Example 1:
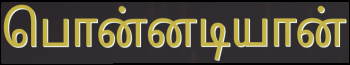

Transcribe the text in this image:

பொன்னடியான்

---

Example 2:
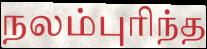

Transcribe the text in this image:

நலம்புரிந்த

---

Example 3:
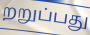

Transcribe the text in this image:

றறுப்பது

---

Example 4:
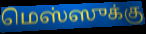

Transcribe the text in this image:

மெஸ்ஸுக்கு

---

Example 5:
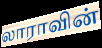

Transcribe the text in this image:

லாராவின்